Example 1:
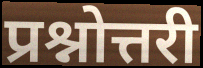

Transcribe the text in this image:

प्रश्नोत्तरी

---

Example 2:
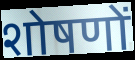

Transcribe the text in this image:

शोषणों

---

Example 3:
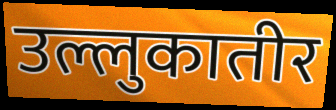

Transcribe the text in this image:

उल्लुकातीर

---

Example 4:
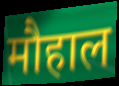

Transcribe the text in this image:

मौहाल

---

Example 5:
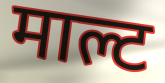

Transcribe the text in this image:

माल्ट